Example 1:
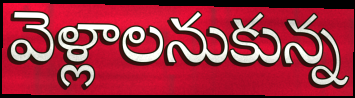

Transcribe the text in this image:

వెళ్లాలనుకున్న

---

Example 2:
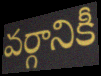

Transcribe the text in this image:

వర్గానికీ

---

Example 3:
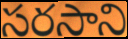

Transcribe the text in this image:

సరసాని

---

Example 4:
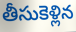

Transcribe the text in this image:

తీసుకెళ్లిన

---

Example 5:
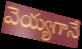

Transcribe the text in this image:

వెయ్యగానే